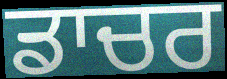
ਡਾਚਰ